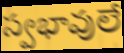
స్వభావులే